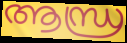
ആന്ധ്ര